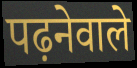
पढ़नेवाले